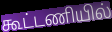
கூட்டணியில்